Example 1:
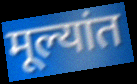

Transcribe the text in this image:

मूल्यांत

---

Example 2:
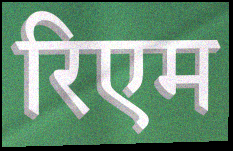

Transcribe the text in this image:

रिएम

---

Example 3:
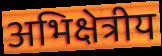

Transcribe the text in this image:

अभिक्षेत्रीय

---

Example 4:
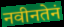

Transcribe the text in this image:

नवीनतेनं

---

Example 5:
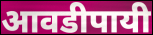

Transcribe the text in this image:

आवडीपायी